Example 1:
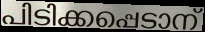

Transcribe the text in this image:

പിടിക്കപ്പെടാന്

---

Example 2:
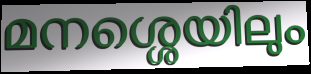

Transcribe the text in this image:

മനശ്ശെയിലും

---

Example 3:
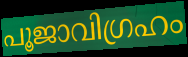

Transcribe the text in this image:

പൂജാവിഗ്രഹം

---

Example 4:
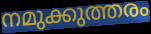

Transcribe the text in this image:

നമുക്കുത്തരം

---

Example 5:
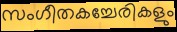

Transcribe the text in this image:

സംഗീതകച്ചേരികളും